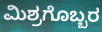
ಮಿಶ್ರಗೊಬ್ಬರ